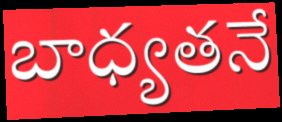
బాధ్యతనే